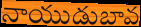
నాయుడుబావ